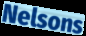
Nelsons